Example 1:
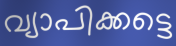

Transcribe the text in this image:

വ്യാപിക്കട്ടെ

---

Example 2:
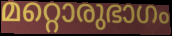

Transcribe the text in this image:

മറ്റൊരുഭാഗം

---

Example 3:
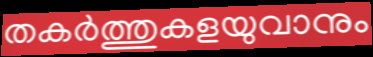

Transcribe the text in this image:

തകർത്തുകളയുവാനും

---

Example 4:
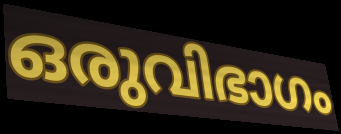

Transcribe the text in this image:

ഒരുവിഭാഗം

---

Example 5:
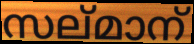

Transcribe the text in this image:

സല്മാന്